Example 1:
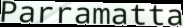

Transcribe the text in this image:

Parramatta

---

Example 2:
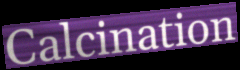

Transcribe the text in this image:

Calcination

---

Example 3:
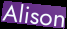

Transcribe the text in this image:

Alison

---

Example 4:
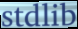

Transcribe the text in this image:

stdlib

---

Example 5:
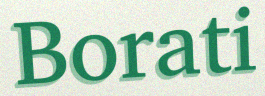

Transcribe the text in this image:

Borati